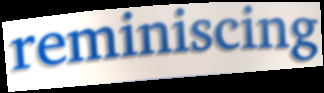
reminiscing